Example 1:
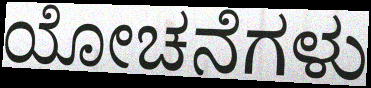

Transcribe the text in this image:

ಯೋಚನೆಗಳು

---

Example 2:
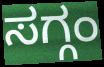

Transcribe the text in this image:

ಸಗ್ಗಂ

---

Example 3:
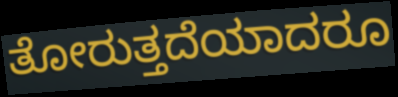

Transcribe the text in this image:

ತೋರುತ್ತದೆಯಾದರೂ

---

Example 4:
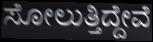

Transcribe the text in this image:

ಸೋಲುತ್ತಿದ್ದೇವೆ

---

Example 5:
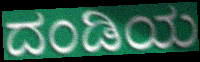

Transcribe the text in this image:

ದಂಡಿಯ